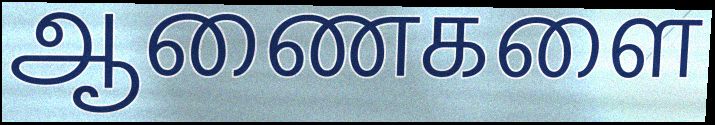
ஆணைகளை